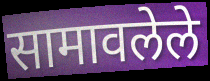
सामावलेले